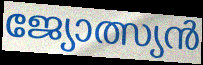
ജ്യോത്സ്യൻ